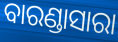
ବାରଣ୍ଡାସାରା